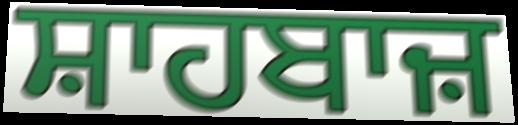
ਸ਼ਾਹਬਾਜ਼